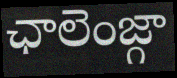
ఛాలెంజ్గా